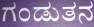
ಗಂಡುತನ